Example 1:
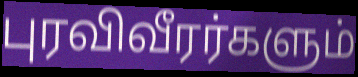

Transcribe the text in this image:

புரவிவீரர்களும்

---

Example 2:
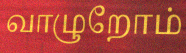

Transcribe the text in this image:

வாழுறோம்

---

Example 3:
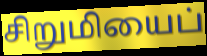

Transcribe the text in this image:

சிறுமியைப்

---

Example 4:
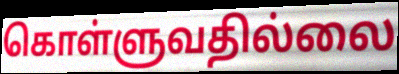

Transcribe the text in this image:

கொள்ளுவதில்லை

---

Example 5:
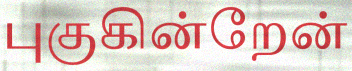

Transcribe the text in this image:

புகுகின்றேன்